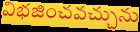
విభజించవచ్చును